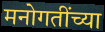
मनोगतींच्या